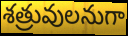
శత్రువులనుగా